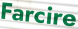
Farcire